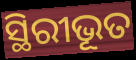
ସ୍ଥିରୀଭୂତ